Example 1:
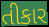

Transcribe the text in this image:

તીકાર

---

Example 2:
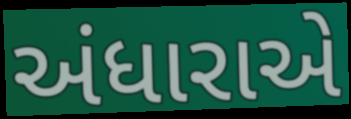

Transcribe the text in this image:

અંધારાએ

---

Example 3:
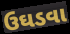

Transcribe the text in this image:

ઉઘડવા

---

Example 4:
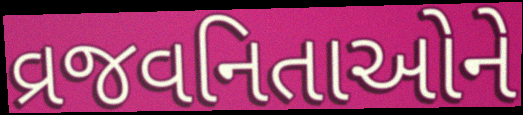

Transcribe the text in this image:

વ્રજવનિતાઓને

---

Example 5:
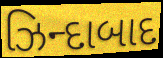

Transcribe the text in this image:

ઝિન્દાબાદ